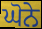
ਘੋਨੇ